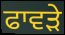
ਫਾਵੜੇ